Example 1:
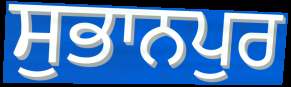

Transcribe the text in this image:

ਸੁਭਾਨਪੁਰ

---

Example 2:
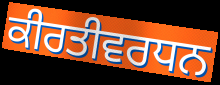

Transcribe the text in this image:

ਕੀਰਤੀਵਰਧਨ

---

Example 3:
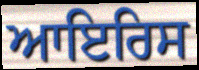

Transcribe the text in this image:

ਆਇਰਿਸ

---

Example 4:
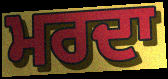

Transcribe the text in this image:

ਮਰਦਾ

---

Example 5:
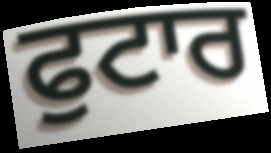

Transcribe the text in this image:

ਫੁਟਾਰ